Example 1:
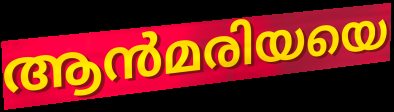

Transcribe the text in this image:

ആൻമരിയയെ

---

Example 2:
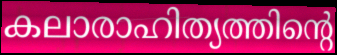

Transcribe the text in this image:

കലാരാഹിത്യത്തിന്റെ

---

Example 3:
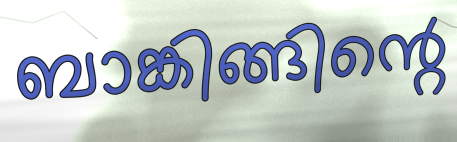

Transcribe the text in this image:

ബാങ്കിങ്ങിന്റെ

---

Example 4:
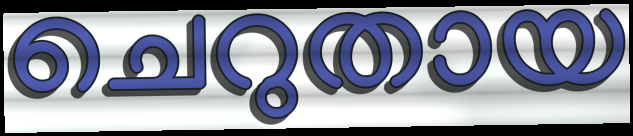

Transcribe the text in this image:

ചെറുതായ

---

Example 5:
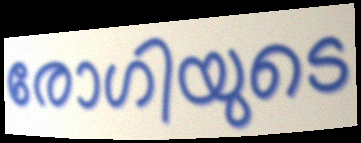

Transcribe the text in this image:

രോഗിയുടെ